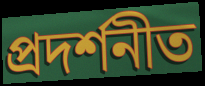
প্ৰদৰ্শনীত